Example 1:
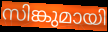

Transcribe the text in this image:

സിങ്കുമായി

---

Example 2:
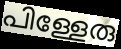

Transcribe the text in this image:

പിള്ളേരു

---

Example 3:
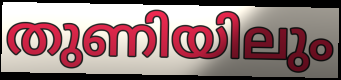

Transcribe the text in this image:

തുണിയിലും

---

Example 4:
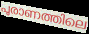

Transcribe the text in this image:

പുരാണത്തിലെ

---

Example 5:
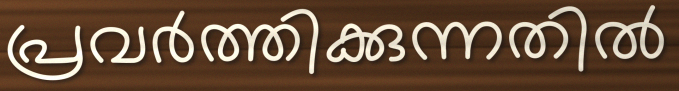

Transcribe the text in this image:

പ്രവർത്തിക്കുന്നതിൽ